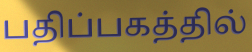
பதிப்பகத்தில்